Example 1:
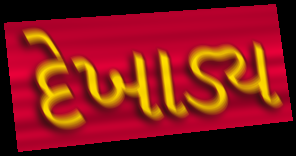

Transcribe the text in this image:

દેખાડ્ય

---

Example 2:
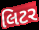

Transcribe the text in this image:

લિટર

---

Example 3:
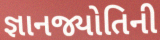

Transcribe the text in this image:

જ્ઞાનજ્યોતિની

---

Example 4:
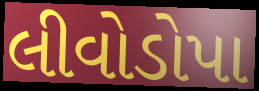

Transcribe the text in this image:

લીવોડોપા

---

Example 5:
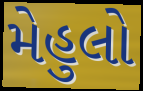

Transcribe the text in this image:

મેહુલો